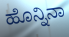
ಹೊನ್ನಿನಾ